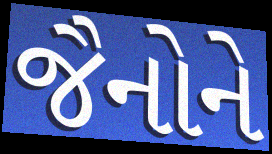
જૈનોને